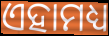
ଏହାମଧ୍ୟ